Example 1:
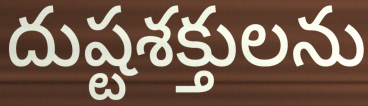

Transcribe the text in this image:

దుష్టశక్తులను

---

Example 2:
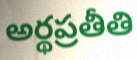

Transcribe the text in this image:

అర్థప్రతీతి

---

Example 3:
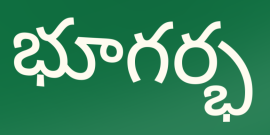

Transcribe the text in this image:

భూగర్భ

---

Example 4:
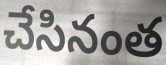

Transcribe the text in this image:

చేసినంత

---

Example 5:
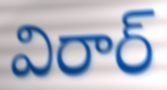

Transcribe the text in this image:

విరార్